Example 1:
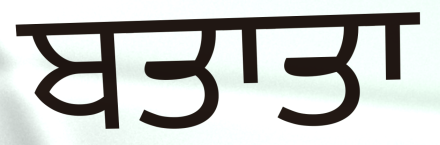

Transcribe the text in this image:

ਬਤਾਤਾ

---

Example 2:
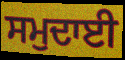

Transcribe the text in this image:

ਸਮੁਦਾਈ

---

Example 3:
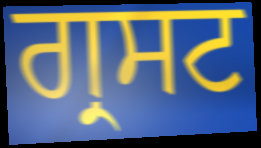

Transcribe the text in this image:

ਗ੍ਰਸਟ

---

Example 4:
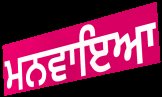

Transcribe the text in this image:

ਮਨਵਾਇਆ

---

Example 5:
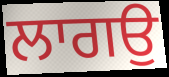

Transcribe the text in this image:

ਲਾਗਉ